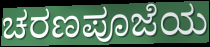
ಚರಣಪೂಜೆಯ